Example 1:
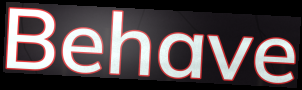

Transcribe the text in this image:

Behave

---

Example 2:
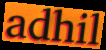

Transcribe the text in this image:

adhil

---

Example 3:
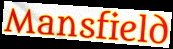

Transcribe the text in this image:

Mansfield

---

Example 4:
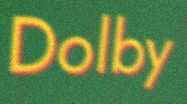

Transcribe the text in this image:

Dolby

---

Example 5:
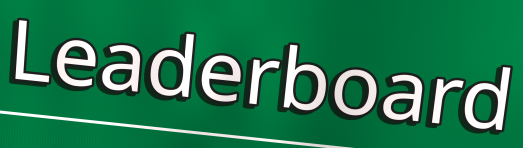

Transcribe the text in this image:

Leaderboard